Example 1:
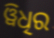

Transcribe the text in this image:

ୱିଧିର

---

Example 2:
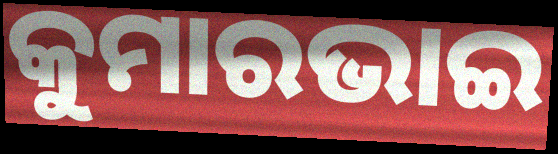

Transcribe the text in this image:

କୁମାରଭାଇ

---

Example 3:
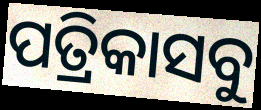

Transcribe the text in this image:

ପତ୍ରିକାସବୁ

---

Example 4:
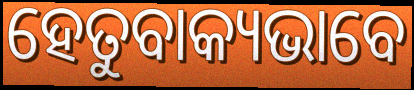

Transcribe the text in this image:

ହେତୁବାକ୍ୟଭାବେ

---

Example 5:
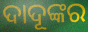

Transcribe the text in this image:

ଦାଦୂଙ୍କର